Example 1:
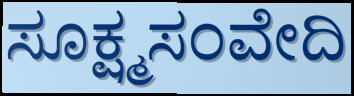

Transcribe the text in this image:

ಸೂಕ್ಷ್ಮಸಂವೇದಿ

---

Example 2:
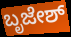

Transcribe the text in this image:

ಬೃಜೇಶ್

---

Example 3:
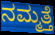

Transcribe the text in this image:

ನಮ್ಮತ್ತೆ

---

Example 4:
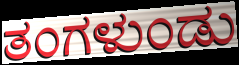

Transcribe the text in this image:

ತಂಗಳುಂಡು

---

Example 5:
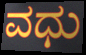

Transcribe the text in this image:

ವಧು